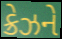
ક્રેઝને